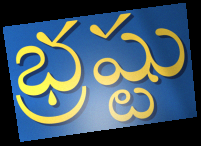
భ్రష్టు